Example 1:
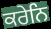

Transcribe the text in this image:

ਕਰੇਨਿ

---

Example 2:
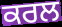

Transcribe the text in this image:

ਕਰਲ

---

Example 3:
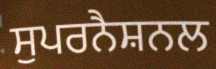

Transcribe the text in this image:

ਸੁਪਰਨੈਸ਼ਨਲ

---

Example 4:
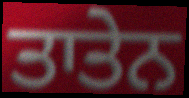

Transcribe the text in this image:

ਤਾਤੇਨ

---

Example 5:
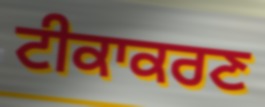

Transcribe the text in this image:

ਟੀਕਾਕਰਣ